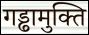
गड्ढामुक्ति